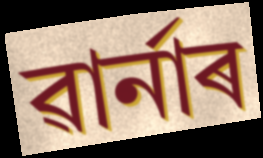
ৱাৰ্নাৰ